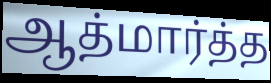
ஆத்மார்த்த